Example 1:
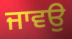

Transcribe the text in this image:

ਜਾਵਉ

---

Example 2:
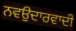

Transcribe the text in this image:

ਨਵਉਦਾਰਵਾਦੀ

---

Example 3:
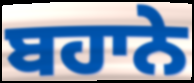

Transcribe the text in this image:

ਬਹਾਨੇ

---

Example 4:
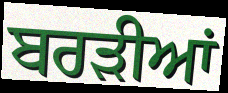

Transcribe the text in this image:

ਬਰੜੀਆਂ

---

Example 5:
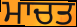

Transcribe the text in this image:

ਮਾਚਤ